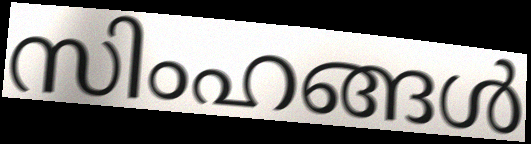
സിംഹങ്ങൾ